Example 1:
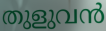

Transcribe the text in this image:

തുളുവൻ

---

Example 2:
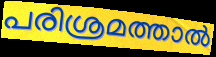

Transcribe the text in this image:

പരിശ്രമത്താൽ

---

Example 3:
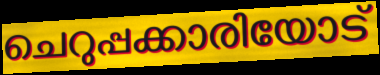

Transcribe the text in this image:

ചെറുപ്പക്കാരിയോട്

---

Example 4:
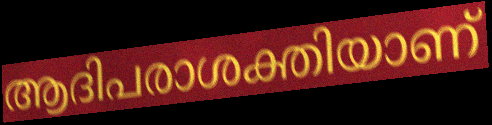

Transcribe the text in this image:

ആദിപരാശക്തിയാണ്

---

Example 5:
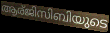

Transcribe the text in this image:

ആര്ജിസിബിയുടെ